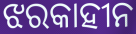
ଝରକାହୀନ